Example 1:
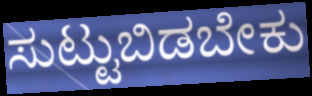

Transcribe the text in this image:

ಸುಟ್ಟುಬಿಡಬೇಕು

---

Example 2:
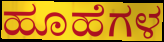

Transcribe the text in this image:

ಹೂಹೆಗಳ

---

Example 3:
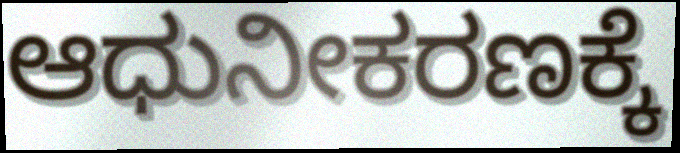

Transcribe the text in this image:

ಆಧುನೀಕರಣಕ್ಕೆ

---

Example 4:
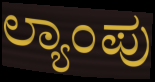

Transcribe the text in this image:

ಲ್ಯಾಂಪು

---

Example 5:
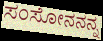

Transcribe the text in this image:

ಸಂಸೋನನನ್ನ